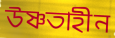
উষ্ণতাহীন